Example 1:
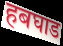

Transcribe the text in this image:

हबघाड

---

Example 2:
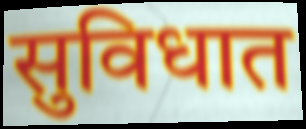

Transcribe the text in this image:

सुविधात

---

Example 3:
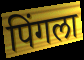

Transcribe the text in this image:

पिंगला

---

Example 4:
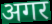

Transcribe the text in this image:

अगर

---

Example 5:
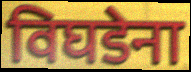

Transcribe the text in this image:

विघडेना